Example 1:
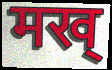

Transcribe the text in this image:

मख्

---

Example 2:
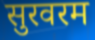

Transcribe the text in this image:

सुरवरम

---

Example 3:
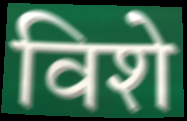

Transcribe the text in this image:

विशे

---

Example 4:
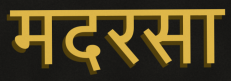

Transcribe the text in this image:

मदरसा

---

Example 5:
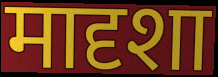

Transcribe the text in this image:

मादृशा